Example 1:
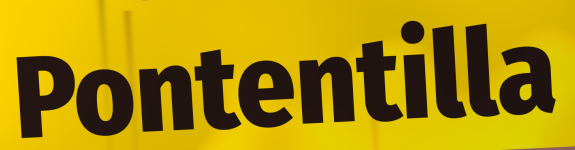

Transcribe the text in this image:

Pontentilla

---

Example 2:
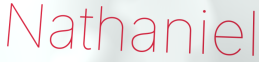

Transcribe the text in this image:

Nathaniel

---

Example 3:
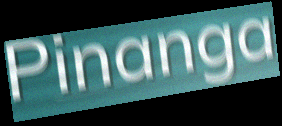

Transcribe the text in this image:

Pinanga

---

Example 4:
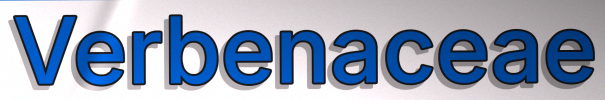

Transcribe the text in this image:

Verbenaceae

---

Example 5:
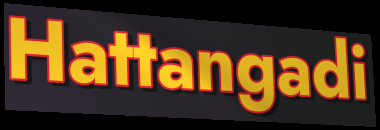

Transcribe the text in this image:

Hattangadi